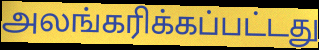
அலங்கரிக்கப்பட்டது